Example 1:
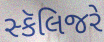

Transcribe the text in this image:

સ્કૅલિજરે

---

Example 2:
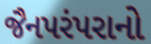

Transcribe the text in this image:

જૈનપરંપરાનો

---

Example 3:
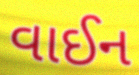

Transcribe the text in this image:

વાઈન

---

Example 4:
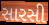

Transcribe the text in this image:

સારસી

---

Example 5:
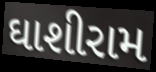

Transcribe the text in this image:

ઘાશીરામ